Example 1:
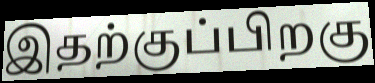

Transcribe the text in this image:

இதற்குப்பிறகு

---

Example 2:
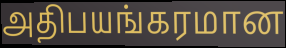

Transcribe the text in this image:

அதிபயங்கரமான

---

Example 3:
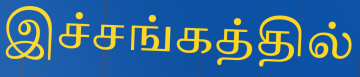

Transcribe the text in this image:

இச்சங்கத்தில்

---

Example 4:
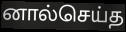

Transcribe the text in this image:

னால்செய்த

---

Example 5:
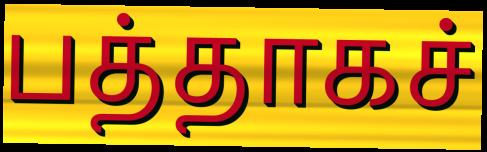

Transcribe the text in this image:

பத்தாகச்